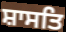
ਸ਼ਾਸਤਿ